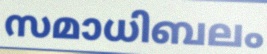
സമാധിബലം